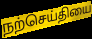
நற்செய்தியை